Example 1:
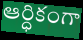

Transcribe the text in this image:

ఆర్ధికంగా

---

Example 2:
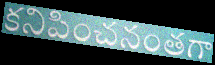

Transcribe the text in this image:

కనిపించనంతగా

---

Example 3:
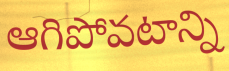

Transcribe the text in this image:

ఆగిపోవటాన్ని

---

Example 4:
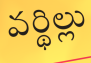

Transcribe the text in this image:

వర్థిల్లు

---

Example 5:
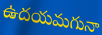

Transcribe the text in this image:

ఉదయమగునా